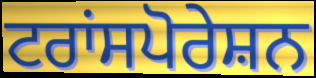
ਟਰਾਂਸਪੋਰੇਸ਼ਨ